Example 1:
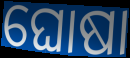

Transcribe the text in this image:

ଘୋଷା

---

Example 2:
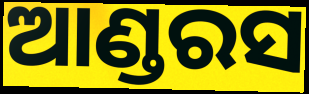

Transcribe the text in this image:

ଆଣ୍ଡରସ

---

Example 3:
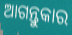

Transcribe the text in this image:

ଆଗନ୍ତୁକାର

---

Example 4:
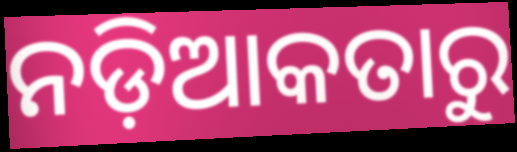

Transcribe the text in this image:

ନଡ଼ିଆକତାରୁ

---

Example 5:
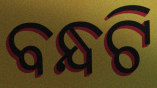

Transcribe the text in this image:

ବନ୍ଧଟି